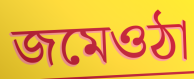
জমেওঠা